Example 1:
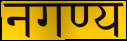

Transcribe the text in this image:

नगण्य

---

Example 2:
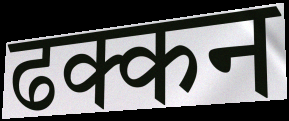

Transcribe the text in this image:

ढक्कन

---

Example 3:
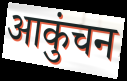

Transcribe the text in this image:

आकुंचन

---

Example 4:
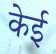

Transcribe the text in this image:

केई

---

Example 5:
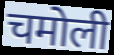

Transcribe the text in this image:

चमोली